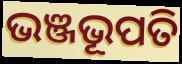
ଭଞ୍ଜଭୂପତି